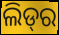
ଲିଡ୍‌ର